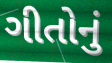
ગીતોનું